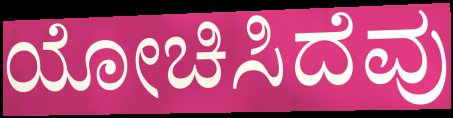
ಯೋಚಿಸಿದೆವು